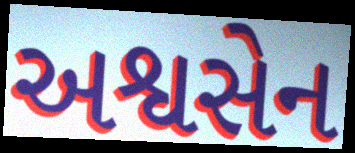
અશ્વસેન